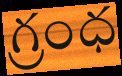
గ్రంధ